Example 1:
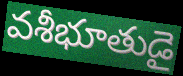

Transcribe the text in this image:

వశీభూతుడై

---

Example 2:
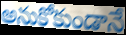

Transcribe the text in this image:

అనుకోకుండానే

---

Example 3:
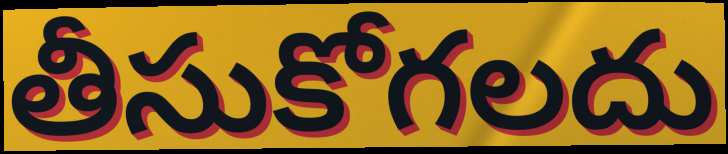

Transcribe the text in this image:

తీసుకోగలదు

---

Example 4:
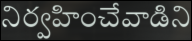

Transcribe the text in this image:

నిర్వహించేవాడిని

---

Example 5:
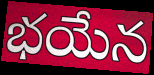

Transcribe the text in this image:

భయేన